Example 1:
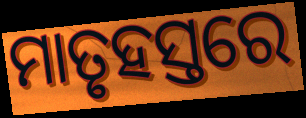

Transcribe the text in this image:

ମାତୃହସ୍ତରେ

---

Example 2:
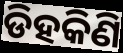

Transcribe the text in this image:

ଡିହକିଣି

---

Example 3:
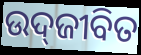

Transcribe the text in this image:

ଉଦ୍‍ଜୀବିତ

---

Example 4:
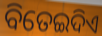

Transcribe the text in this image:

ବିତେଇଦିଏ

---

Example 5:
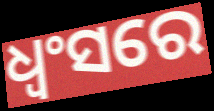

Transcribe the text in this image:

ଧ୍ଵଂସରେ